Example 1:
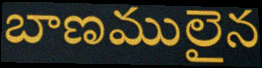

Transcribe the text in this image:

బాణములైన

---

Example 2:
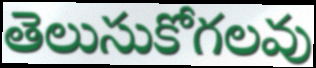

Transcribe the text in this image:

తెలుసుకోగలవు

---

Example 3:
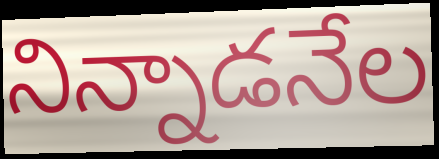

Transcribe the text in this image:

నిన్నాడనేల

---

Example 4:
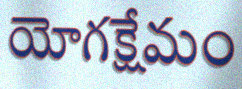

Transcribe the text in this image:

యోగక్షేమం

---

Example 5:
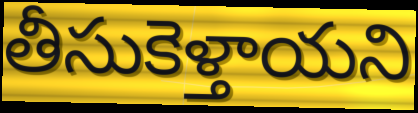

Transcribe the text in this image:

తీసుకెళ్తాయని